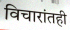
विचारांतही